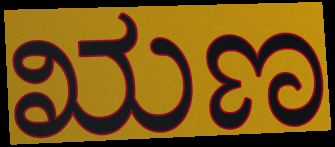
ಋಣ